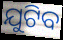
ଯୁଟିବ